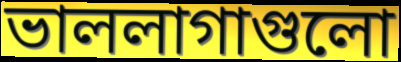
ভাললাগাগুলো